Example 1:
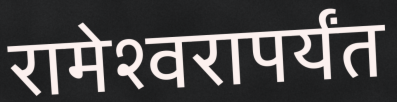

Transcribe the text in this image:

रामेश्वरापर्यंत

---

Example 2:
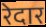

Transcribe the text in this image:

रेदार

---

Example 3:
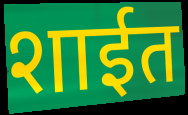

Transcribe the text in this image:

शाईत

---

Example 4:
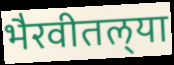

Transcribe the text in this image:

भैरवीतल्या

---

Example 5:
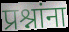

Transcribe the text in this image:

प्रश्नांना